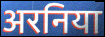
अरनिया